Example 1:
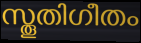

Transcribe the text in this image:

സ്തൂതിഗീതം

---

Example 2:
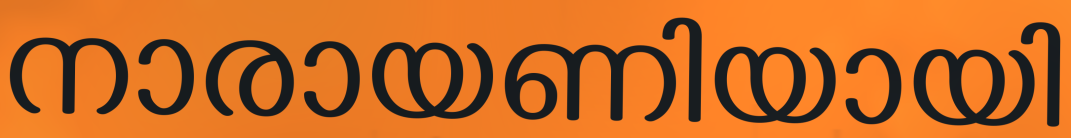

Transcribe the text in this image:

നാരായണിയായി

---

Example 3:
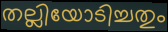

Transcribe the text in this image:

തല്ലിയോടിച്ചതും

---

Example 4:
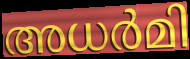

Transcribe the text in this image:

അധർമി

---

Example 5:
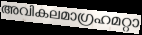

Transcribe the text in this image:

അവികലമാഗ്രഹമറ്റാ